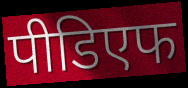
पीडिएफ